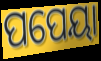
ପପେୟା